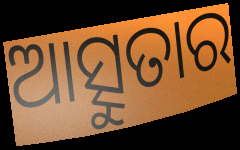
ଆତ୍ସୁତାର